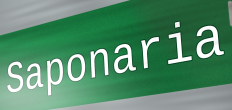
Saponaria